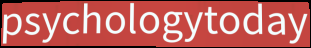
psychologytoday